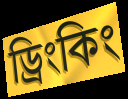
ড্রিংকিং